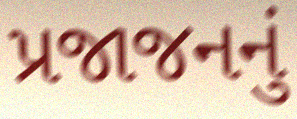
પ્રજાજનનું